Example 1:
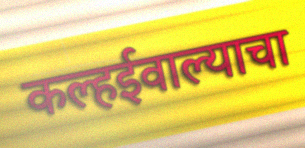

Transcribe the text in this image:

कल्हईवाल्याचा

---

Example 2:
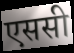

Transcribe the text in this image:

एससी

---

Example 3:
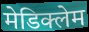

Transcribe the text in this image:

मेडिक्लेम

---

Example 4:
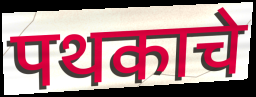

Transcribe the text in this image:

पथकाचे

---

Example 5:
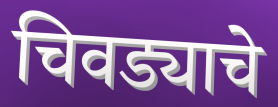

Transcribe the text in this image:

चिवड्याचे